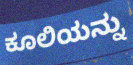
ಕೂಲಿಯನ್ನು